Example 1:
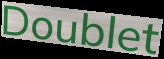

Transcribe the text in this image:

Doublet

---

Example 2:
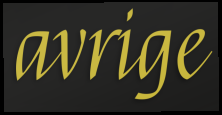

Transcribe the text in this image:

avrige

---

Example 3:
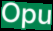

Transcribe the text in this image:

Opu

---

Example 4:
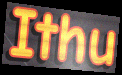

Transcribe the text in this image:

Ithu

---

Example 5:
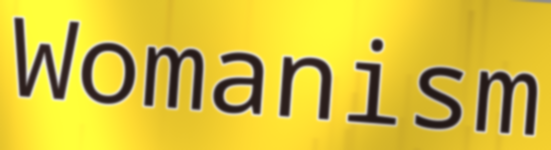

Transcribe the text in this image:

Womanism